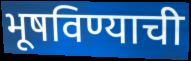
भूषविण्याची